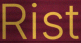
Rist